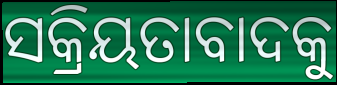
ସକ୍ରିୟତାବାଦକୁ